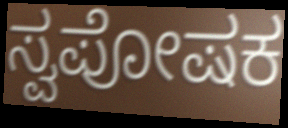
ಸ್ವಪೋಷಕ